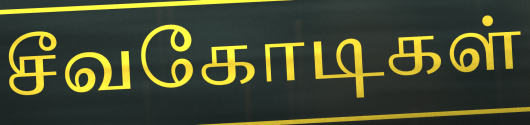
சீவகோடிகள்